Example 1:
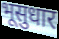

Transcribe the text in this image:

भूसुधार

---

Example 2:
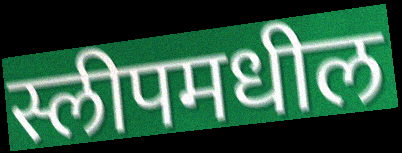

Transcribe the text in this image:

स्लीपमधील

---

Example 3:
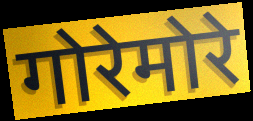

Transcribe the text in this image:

गोरेमोरे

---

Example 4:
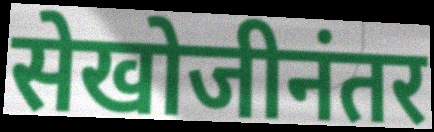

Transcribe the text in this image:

सेखोजीनंतर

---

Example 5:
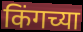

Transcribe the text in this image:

किंगच्या